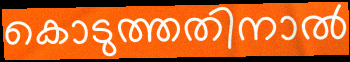
കൊടുത്തതിനാൽ